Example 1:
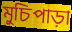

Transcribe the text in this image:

মুচিপাড়া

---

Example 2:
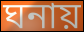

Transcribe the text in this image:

ঘনায়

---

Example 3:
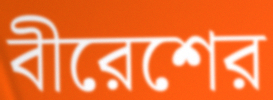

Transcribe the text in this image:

বীরেশের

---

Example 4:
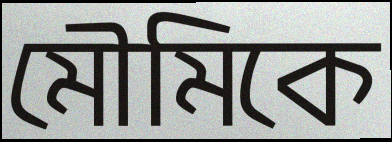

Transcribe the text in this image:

মৌমিকে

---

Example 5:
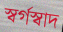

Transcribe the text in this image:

স্বর্গস্বাদ